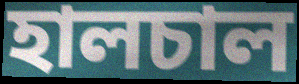
হালচাল